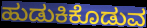
ಹುಡುಕಿಕೊಡುವ